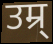
उम्र्